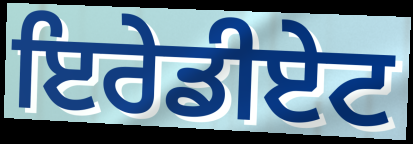
ਇਰੇਡੀਏਟ